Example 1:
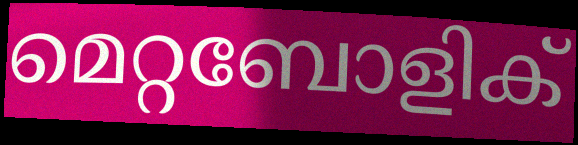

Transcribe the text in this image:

മെറ്റബോളിക്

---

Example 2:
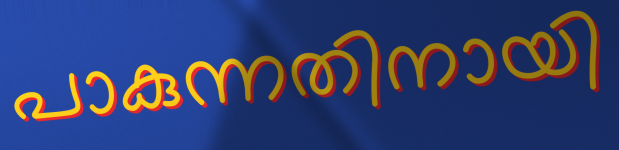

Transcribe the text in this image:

പാകുന്നതിനായി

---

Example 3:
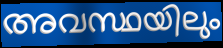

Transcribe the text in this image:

അവസ്ഥയിലും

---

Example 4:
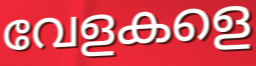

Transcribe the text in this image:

വേളകളെ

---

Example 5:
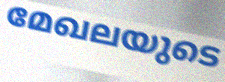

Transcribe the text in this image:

മേഖലയുടെ